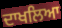
ਦਾਖਲਿਆ